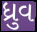
ધ્રુવ